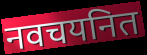
नवचयनित